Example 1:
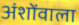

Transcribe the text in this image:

अंशोंवाला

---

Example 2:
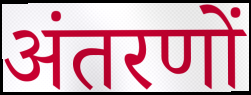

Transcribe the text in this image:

अंतरणों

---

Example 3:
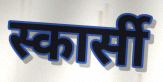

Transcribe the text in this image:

स्कार्सी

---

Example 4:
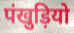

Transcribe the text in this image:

पंखुड़ियो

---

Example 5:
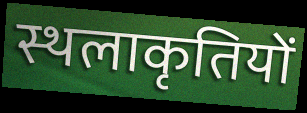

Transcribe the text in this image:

स्थलाकृतियों